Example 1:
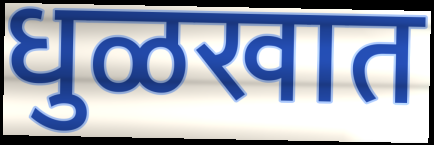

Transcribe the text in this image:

धुळखात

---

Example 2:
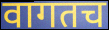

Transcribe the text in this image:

वागतच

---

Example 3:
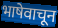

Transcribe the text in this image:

भाषेवाचून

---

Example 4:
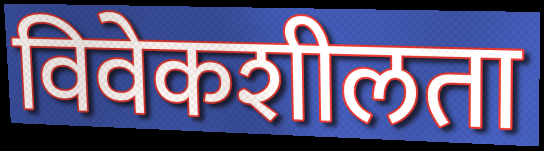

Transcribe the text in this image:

विवेकशीलता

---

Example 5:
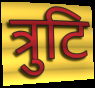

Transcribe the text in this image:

त्रुटि